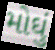
મોઘું